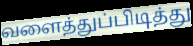
வளைத்துப்பிடித்து